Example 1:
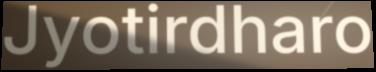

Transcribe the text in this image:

Jyotirdharo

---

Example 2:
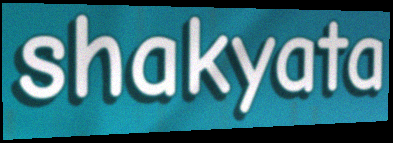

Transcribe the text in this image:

shakyata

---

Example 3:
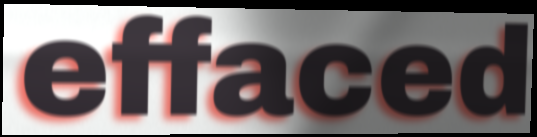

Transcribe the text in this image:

effaced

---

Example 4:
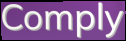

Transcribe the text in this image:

Comply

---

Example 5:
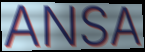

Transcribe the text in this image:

ANSA